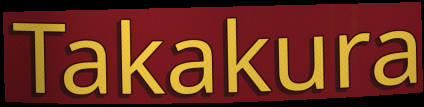
Takakura